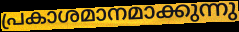
പ്രകാശമാനമാക്കുന്നു